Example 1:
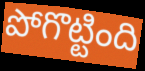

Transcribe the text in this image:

పోగొట్టింది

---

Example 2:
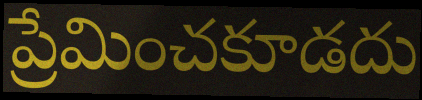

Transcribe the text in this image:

ప్రేమించకూడదు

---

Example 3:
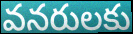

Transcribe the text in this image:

వనరులకు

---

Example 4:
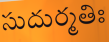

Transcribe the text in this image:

సుదుర్మతిః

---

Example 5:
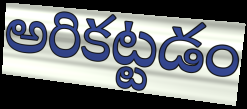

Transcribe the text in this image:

అరికట్టడం